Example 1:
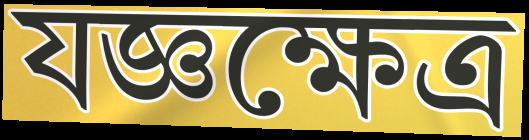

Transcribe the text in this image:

যজ্ঞক্ষেত্র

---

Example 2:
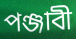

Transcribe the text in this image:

পঞ্জাবী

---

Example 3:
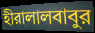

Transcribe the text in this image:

হীরালালবাবুর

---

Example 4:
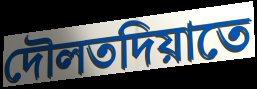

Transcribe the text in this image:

দৌলতদিয়াতে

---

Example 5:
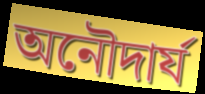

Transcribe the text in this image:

অনৌদার্য